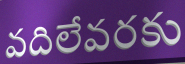
వదిలేవరకు